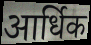
आर्धिक